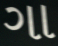
ગા